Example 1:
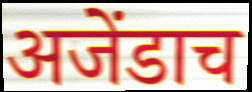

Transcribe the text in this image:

अजेंडाच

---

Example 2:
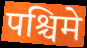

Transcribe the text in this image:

पश्चिमे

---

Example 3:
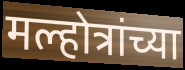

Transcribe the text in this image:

मल्होत्रांच्या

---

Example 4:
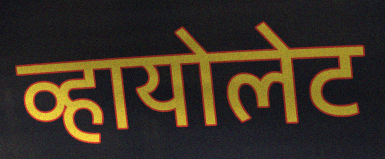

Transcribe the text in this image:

व्हायोलेट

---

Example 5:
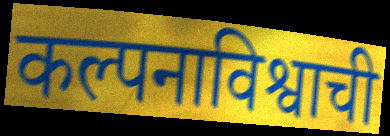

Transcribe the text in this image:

कल्पनाविश्वाची